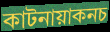
কাটনায়াকনচ